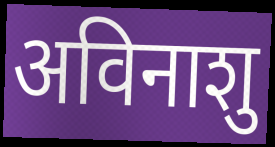
अविनाशु